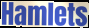
Hamlets